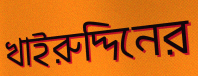
খাইরুদ্দিনের